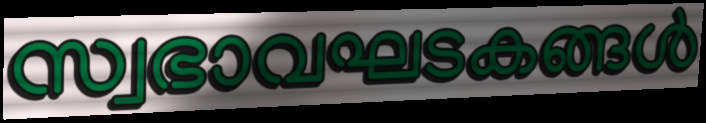
സ്വഭാവഘടകങ്ങൾ